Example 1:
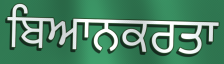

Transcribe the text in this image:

ਬਿਆਨਕਰਤਾ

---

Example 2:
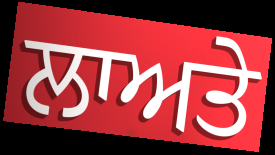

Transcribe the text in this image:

ਲਾਅਤੇ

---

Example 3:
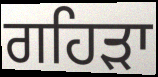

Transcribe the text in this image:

ਗਹਿੜਾ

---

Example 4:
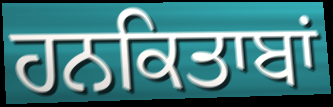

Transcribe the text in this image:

ਹਨਕਿਤਾਬਾਂ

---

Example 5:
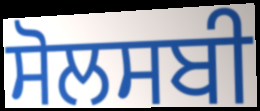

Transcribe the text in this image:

ਸੋਲਸਬੀ